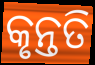
କୃନ୍ତତି